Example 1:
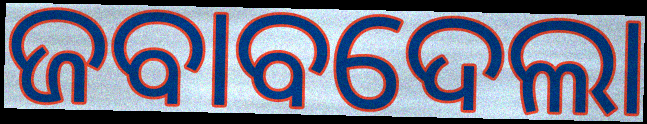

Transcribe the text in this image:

ଜବାବଦେଲା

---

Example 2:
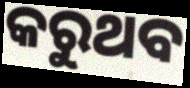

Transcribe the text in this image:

କରୁଥବ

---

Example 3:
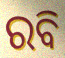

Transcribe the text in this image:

ରବି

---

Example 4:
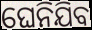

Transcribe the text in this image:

ଘେନିଯିବ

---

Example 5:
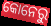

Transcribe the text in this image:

କୋନେରୁ